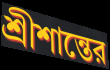
শ্রীশান্তের